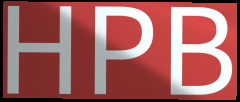
HPB